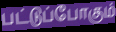
பட்டுப்போகும்